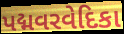
પદ્મવરવેદિકા